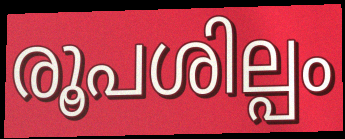
രൂപശില്പം